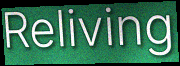
Reliving